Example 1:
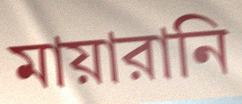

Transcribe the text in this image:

মায়ারানি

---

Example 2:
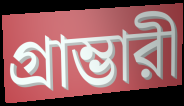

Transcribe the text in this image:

গ্রাম্ভারী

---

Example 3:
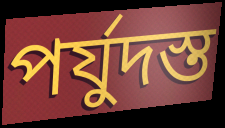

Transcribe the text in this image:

পর্যুদস্ত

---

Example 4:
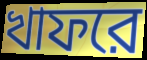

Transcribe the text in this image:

খাফরে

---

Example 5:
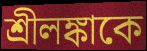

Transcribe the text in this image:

শ্রীলঙ্কাকে